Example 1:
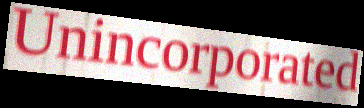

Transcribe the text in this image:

Unincorporated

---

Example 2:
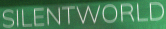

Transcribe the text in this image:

SILENTWORLD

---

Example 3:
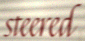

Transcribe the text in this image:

steered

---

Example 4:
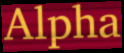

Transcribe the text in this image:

Alpha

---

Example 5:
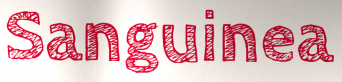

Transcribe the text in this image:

Sanguinea